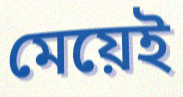
মেয়েই